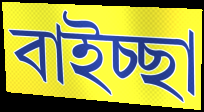
বাইচ্ছা